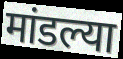
मांडल्या